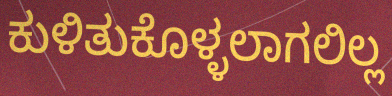
ಕುಳಿತುಕೊಳ್ಳಲಾಗಲಿಲ್ಲ